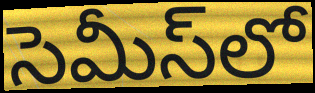
సెమీస్‌లో